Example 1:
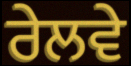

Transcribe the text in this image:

ਰੇਲਵੇ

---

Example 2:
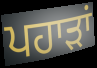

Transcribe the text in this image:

ਪਹਾੜਾਂ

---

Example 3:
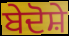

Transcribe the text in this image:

ਬੇਦੋਸ਼ੇ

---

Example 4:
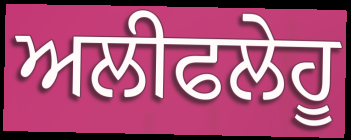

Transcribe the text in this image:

ਅਲੀਫਲੇਹੂ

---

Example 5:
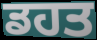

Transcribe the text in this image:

ਡਹਤ